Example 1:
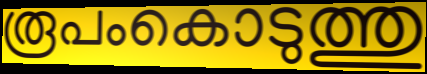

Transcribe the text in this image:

രൂപംകൊടുത്തു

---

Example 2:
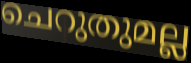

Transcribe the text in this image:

ചെറുതുമല്ല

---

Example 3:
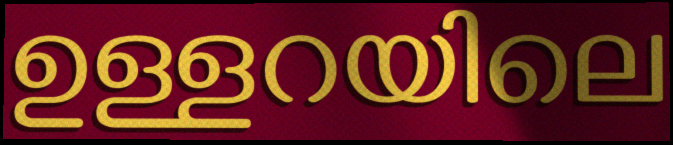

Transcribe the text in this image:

ഉള്ളറയിലെ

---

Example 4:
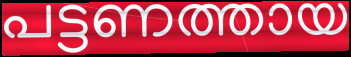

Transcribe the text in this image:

പട്ടണത്തായ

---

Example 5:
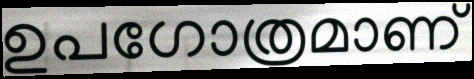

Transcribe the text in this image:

ഉപഗോത്രമാണ്